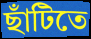
ছাঁটিতে